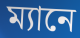
ম্যানে